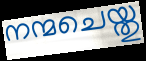
നന്മചെയ്തു